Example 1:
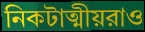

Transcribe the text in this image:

নিকটাত্মীয়রাও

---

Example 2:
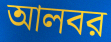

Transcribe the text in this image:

আলবর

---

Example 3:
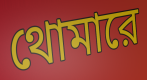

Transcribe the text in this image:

থোমারে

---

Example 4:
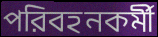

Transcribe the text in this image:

পরিবহনকর্মী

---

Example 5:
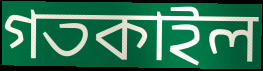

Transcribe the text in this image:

গতকাইল